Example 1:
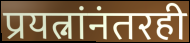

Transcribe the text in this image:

प्रयत्नांनंतरही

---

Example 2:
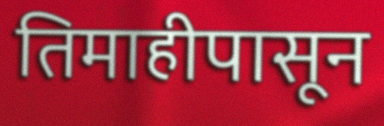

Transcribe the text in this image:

तिमाहीपासून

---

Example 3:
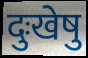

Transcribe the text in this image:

दुःखेषु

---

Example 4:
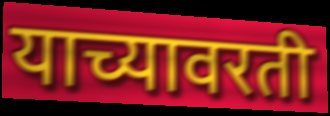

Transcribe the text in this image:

याच्यावरती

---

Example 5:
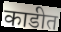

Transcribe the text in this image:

काडीत